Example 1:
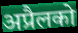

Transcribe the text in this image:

अप्रैलको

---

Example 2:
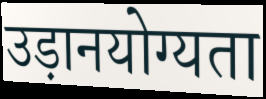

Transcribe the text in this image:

उड़ानयोग्यता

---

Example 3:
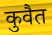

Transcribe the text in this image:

कुवैत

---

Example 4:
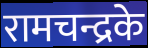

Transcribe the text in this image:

रामचन्द्रके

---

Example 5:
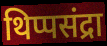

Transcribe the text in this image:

थिप्पसंद्रा